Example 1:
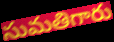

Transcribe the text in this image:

సుమతిగారు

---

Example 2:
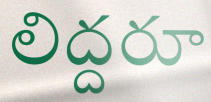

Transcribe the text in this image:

లిద్దరూ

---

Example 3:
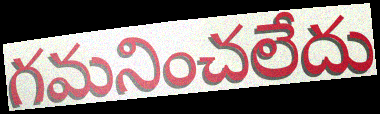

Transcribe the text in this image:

గమనించలేదు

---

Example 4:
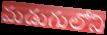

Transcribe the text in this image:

మడుగులోని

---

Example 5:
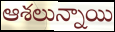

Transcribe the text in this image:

ఆశలున్నాయి